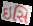
ઇસિ